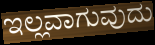
ಇಲ್ಲವಾಗುವುದು